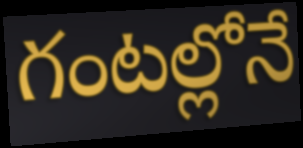
గంటల్లోనే